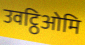
उवट्ठिओमि